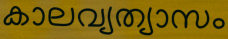
കാലവ്യത്യാസം